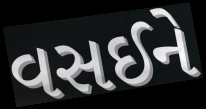
વસઈને